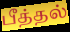
பீத்தல்